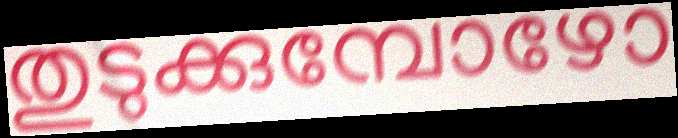
തുടുക്കുമ്പോഴോ